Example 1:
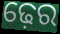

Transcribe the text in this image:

ଢ଼େର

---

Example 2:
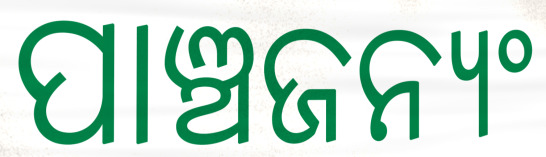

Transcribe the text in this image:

ପାଞ୍ଚଜନ୍ୟଂ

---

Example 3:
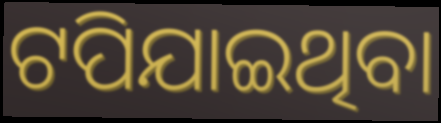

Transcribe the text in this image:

ଟପିଯାଇଥିବା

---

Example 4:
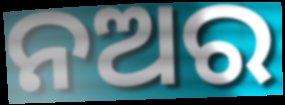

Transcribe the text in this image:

ନଅର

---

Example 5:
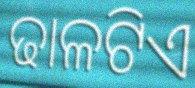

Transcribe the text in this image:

ଢାଳଟିଏ